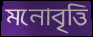
মনোবৃত্তি